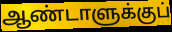
ஆண்டாளுக்குப்